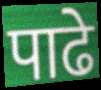
पाढे